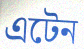
এটেন